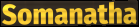
Somanatha